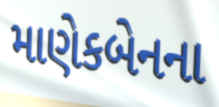
માણેકબેનના